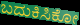
ಬದುಕಿಸಿಕೋ